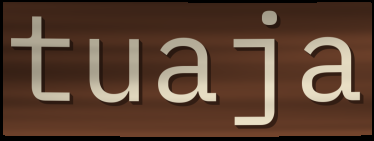
tuaja